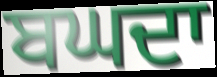
ਬਘਦਾ